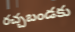
రచ్చబండకు